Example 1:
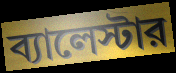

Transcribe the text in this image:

ব্যালেস্টার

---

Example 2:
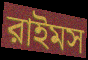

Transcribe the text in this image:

রাইমস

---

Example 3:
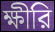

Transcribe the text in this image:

ক্ষীরি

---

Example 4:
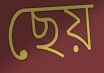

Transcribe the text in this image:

ছেয়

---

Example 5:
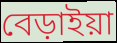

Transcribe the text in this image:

বেড়াইয়া